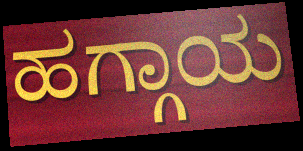
ಹಗ್ಗಾಯ